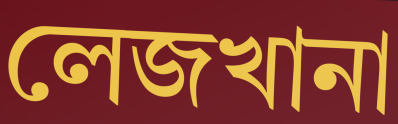
লেজখানা